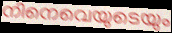
നിനെവെയുടെയും